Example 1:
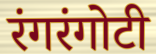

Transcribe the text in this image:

रंगरंगोटी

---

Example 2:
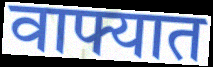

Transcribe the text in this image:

वाफ्यात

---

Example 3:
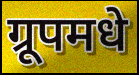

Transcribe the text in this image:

ग्रूपमधे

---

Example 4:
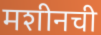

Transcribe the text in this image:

मशीनची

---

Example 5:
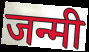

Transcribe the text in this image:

जन्मी